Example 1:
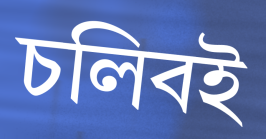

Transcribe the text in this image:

চলিবই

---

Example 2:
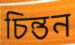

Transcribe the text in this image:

চিন্তন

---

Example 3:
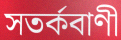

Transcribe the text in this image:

সতৰ্কবাণী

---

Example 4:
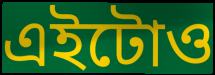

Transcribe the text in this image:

এইটোও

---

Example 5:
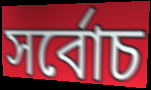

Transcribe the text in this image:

সৰ্বোচ